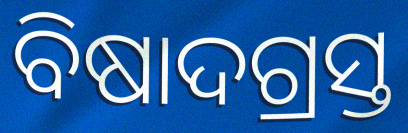
ବିଷାଦଗ୍ରସ୍ତ